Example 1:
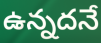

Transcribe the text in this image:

ఉన్నదనే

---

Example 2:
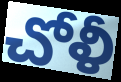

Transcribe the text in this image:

చోళీ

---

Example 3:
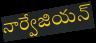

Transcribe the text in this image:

నార్వేజియన్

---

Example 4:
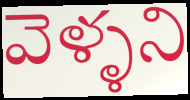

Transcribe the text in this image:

వెళ్ళని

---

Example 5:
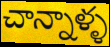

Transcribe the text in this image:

చాన్నాళ్ళ